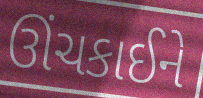
ઊંચકાઈને